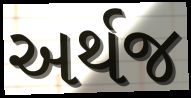
અર્થજ